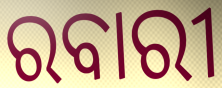
ରବାରୀ